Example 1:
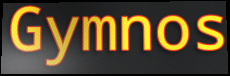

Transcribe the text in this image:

Gymnos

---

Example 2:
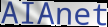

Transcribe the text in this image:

AIAnet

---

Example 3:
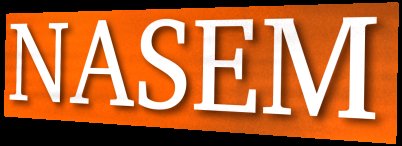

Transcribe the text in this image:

NASEM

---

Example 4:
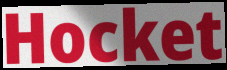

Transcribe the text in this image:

Hocket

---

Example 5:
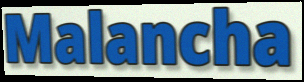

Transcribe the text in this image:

Malancha